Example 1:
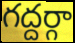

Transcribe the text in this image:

గద్దర్గా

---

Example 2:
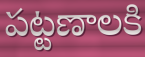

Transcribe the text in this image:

పట్టణాలకి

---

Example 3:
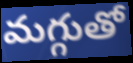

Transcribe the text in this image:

మగ్గుతో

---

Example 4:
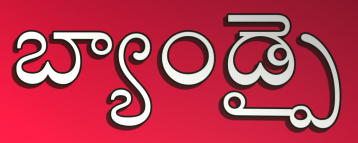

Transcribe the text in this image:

బ్యాండ్పై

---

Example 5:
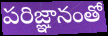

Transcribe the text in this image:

పరిజ్ఞానంతో